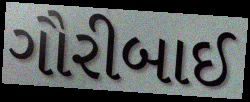
ગૌરીબાઈ